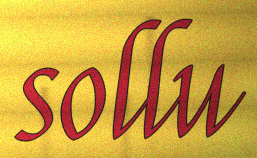
sollu